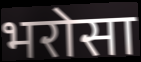
भरोसा